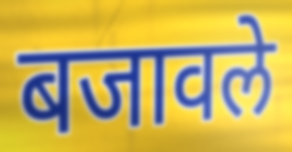
बजावले